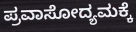
ಪ್ರವಾಸೋದ್ಯಮಕ್ಕೆ